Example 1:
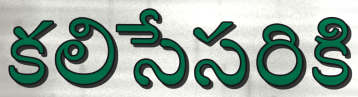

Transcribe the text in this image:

కలిసేసరికి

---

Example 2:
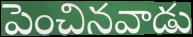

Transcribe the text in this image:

పెంచినవాడు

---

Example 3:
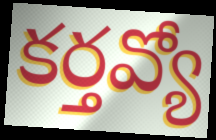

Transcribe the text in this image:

కర్తవ్యో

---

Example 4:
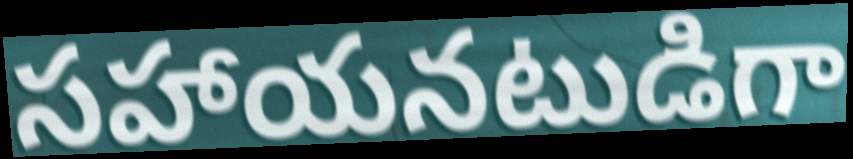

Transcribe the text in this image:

సహాయనటుడిగా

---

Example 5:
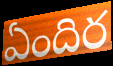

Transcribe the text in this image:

ఏందిర